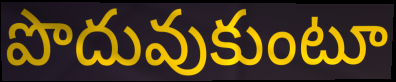
పొదువుకుంటూ